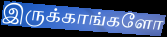
இருக்காங்களோ